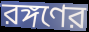
রঙ্গণের